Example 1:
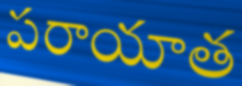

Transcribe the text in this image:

పరాయాత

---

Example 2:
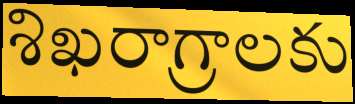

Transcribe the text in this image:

శిఖరాగ్రాలకు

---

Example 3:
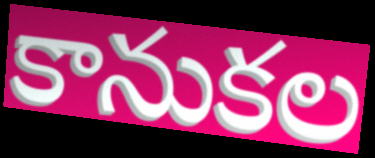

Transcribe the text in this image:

కానుకల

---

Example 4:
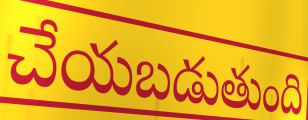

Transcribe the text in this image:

చేయబడుతుంది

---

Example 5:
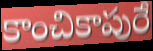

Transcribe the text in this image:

కాంచికాపురే